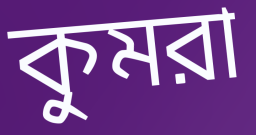
কুমরা